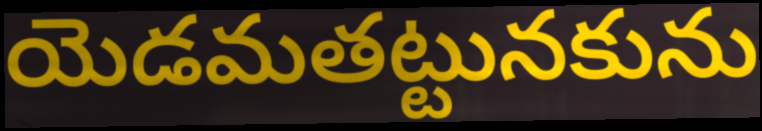
యెడమతట్టునకును